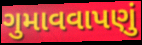
ગુમાવવાપણું